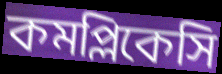
কমপ্লিকেসি